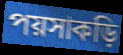
পয়সাকড়ি